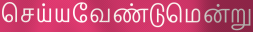
செய்யவேண்டுமென்று